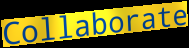
Collaborate